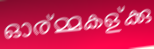
ഓര്മ്മകള്ക്കു